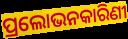
ପ୍ରଲୋଭନକାରିଣୀ